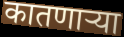
कातणाऱ्या